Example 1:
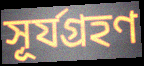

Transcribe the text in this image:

সূর্যগ্রহণ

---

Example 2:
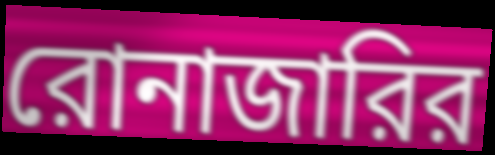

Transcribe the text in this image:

রোনাজারির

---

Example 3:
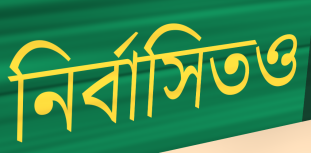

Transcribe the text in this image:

নির্বাসিতও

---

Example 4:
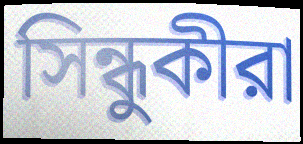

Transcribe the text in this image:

সিন্ধুকীরা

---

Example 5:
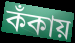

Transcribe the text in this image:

কঁকায়